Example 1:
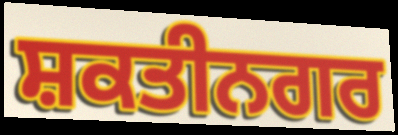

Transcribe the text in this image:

ਸ਼ਕਤੀਨਗਰ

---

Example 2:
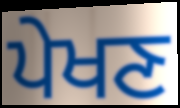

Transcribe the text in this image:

ਪੇਖਣ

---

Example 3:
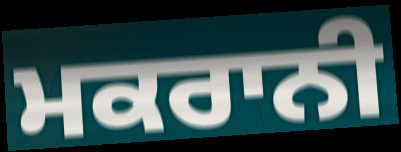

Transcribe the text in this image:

ਮਕਰਾਨੀ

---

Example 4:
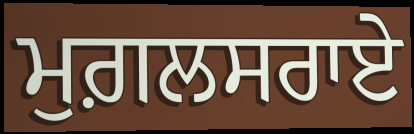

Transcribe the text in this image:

ਮੁਗ਼ਲਸਰਾਏ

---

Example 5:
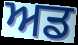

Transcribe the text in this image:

ਅਡ